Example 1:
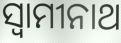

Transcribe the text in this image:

ସ୍ୱାମୀନାଥ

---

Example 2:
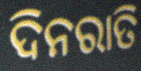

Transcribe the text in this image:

ଦିନରାତି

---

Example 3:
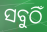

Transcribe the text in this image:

ସବୁଠିଁ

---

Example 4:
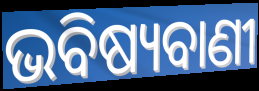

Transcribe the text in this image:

ଭବିଷ୍ୟବାଣୀ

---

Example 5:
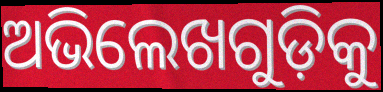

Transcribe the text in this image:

ଅଭିଲେଖଗୁଡ଼ିକୁ